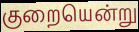
குறையென்று